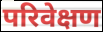
परिवेक्षण